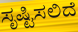
ಸೃಷ್ಟಿಸಲಿದೆ